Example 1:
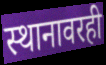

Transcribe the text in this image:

स्थानावरही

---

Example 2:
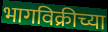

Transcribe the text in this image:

भागविक्रीच्या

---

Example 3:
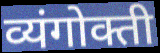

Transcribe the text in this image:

व्यंगोक्ती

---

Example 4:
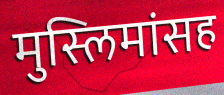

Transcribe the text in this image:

मुस्लिमांसह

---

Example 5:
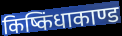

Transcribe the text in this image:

किष्किंधाकाण्ड